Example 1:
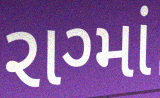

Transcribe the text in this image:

રાગ્માં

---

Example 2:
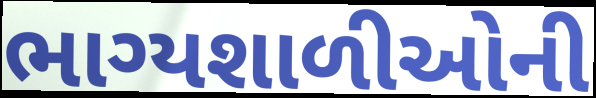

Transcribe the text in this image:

ભાગ્યશાળીઓની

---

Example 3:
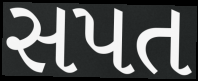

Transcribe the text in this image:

સપત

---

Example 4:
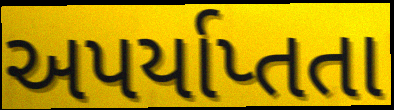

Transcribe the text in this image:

અપર્યાપ્તતા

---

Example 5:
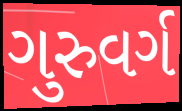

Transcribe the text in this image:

ગુરુવર્ગ